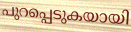
പുറപ്പെടുകയായി